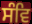
ਸੰਵਿ